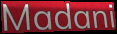
Madani